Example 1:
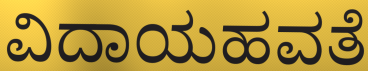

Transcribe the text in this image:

ವಿದಾಯಹವತೆ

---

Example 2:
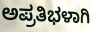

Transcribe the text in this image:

ಅಪ್ರತಿಭಳಾಗಿ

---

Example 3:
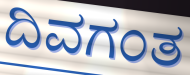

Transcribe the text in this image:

ದಿವಗಂತ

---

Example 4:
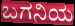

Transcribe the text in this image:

ಬಗನಿಯ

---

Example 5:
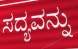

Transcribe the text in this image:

ಸದ್ಯವನ್ನು